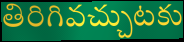
తిరిగివచ్చుటకు